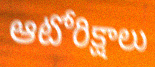
ఆటోరిక్షాలు